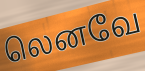
லெனவே